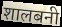
शालबनी